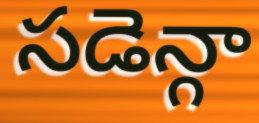
సడెన్గా